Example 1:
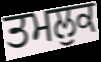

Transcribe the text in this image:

ਤਮਲੁਕ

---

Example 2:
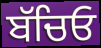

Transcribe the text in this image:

ਬੱਚਿਓ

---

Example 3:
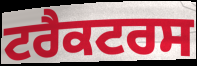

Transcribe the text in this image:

ਟਰੈਕਟਰਸ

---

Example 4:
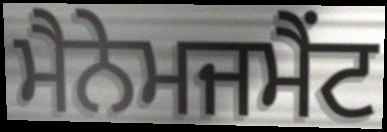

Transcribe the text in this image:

ਮੈਨੇਮਜਮੈਂਟ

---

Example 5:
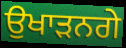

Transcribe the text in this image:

ਉਖਾੜਨਗੇ